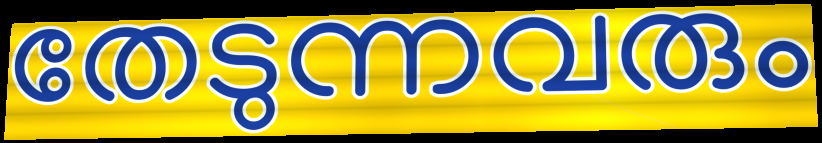
തേടുന്നവരും